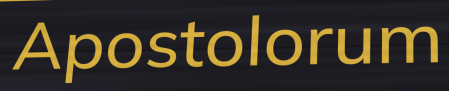
Apostolorum